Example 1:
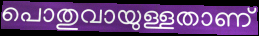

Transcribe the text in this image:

പൊതുവായുള്ളതാണ്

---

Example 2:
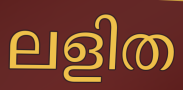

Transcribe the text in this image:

ലളിത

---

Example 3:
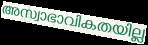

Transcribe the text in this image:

അസ്വാഭാവികതയില്ല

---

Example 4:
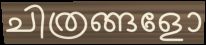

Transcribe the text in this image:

ചിത്രങ്ങളോ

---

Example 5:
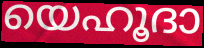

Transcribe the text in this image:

യെഹൂദാ